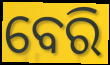
ବେରି